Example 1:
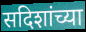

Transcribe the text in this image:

सदिशांच्या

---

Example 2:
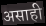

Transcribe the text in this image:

असाही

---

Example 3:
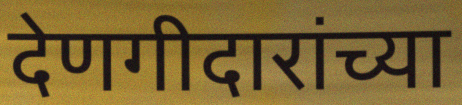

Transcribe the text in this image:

देणगीदारांच्या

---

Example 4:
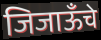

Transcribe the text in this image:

जिजाऊँचे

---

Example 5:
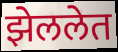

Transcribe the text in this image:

झेललेत